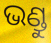
ଭଣ୍ଡୁ